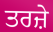
ਤਰਜ਼ੇ